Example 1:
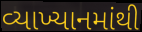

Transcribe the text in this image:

વ્યાખ્યાનમાંથી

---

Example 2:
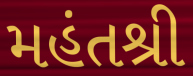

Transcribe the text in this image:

મહંતશ્રી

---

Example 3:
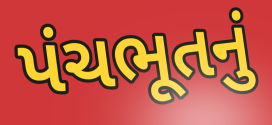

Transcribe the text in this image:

પંચભૂતનું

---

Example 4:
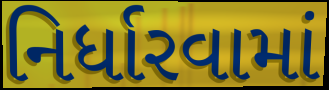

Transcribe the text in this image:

નિર્ધારવામાં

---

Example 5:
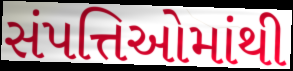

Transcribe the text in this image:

સંપત્તિઓમાંથી